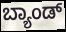
ಬ್ಯಾಂಡ್